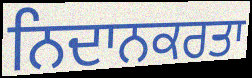
ਨਿਦਾਨਕਰਤਾ